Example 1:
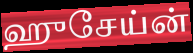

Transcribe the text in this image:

ஹுசேய்ன்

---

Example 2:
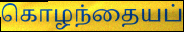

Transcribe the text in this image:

கொழந்தையப்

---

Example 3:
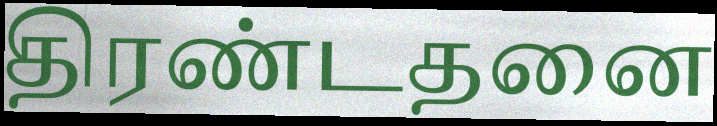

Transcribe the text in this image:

திரண்டதனை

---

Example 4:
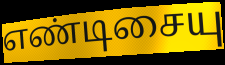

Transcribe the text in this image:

எண்டிசையு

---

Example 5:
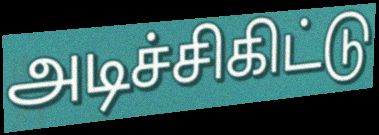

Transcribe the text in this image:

அடிச்சிகிட்டு